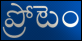
ప్రోటెం